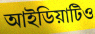
আইডিয়াটিও